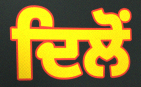
ਦਿਲੋਂ